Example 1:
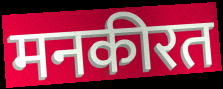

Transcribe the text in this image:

मनकीरत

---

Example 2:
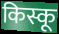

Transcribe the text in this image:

किस्कू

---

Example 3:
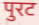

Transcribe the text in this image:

पुरट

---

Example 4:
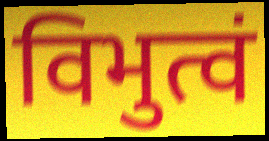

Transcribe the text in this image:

विभुत्वं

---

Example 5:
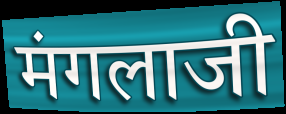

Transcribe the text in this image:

मंगलाजी